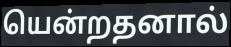
யென்றதனால்